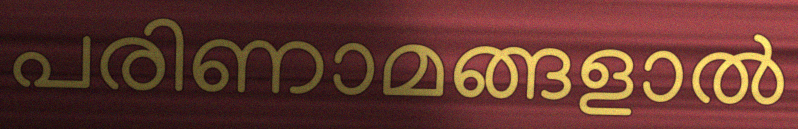
പരിണാമങ്ങളാൽ